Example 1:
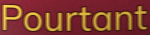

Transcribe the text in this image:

Pourtant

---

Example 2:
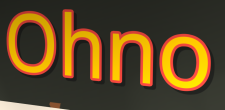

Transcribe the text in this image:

Ohno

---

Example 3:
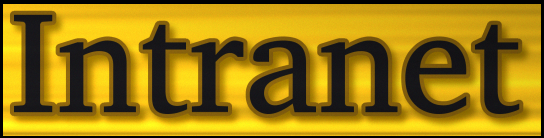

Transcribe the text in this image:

Intranet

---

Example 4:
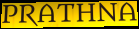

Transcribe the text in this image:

PRATHNA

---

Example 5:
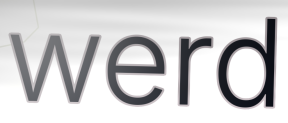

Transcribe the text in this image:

werd